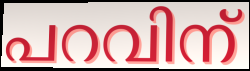
പറവിന്